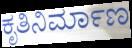
ಕೃತಿನಿರ್ಮಾಣ